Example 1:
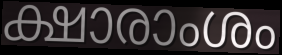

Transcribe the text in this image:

ക്ഷാരാംശം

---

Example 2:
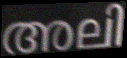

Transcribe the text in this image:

അലി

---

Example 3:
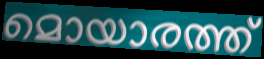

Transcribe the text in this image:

മൊയാരത്ത്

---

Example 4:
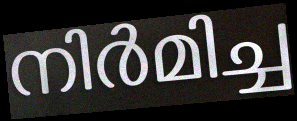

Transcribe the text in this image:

നിർമിച്ച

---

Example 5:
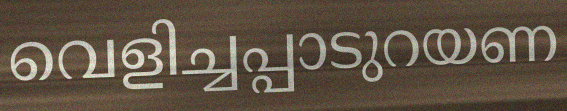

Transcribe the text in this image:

വെളിച്ചപ്പാടുറയണ